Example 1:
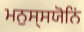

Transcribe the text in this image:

ਮਨੁਸ੍ਸਯੋਨਿਂ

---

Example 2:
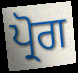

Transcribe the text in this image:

ਪ੍ਰੋਗ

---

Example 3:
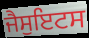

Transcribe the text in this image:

ਜੈਸੁਇਟਸ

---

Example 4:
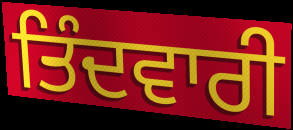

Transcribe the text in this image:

ਤਿੰਦਵਾਰੀ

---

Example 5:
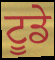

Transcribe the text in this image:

ਟੂਡੇ